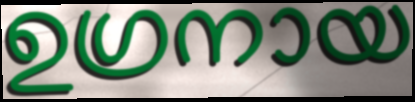
ഉഗ്രനായ